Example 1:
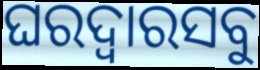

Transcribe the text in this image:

ଘରଦ୍ୱାରସବୁ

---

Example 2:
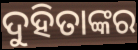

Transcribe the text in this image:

ଦୁହିତାଙ୍କର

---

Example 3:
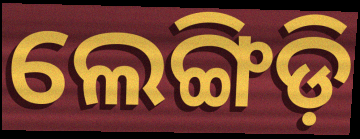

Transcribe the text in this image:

ଲେଙ୍ଗିଡ଼ି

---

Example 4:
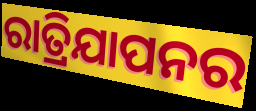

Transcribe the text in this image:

ରାତ୍ରିଯାପନର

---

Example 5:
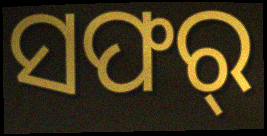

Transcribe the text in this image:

ସଫର୍